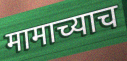
मामाच्याच